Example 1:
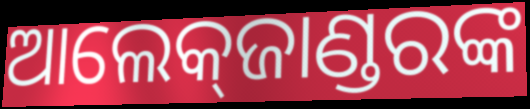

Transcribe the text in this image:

ଆଲେକ୍‌ଜାଣ୍ଡରଙ୍କ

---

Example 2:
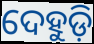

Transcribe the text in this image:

ଦେହୁଡ଼ି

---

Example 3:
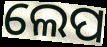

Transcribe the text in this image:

ଲେପ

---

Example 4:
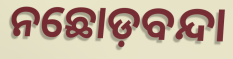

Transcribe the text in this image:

ନଛୋଡ଼ବନ୍ଦା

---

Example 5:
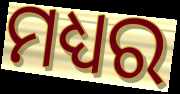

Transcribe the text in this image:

ମଧ୍ଯର